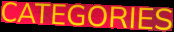
CATEGORIES